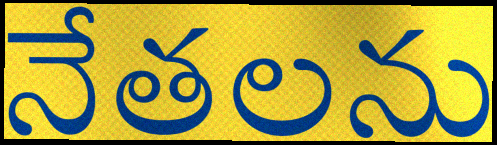
నేతలను